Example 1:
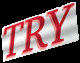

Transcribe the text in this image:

TRY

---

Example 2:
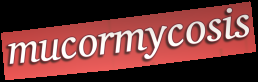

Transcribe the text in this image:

mucormycosis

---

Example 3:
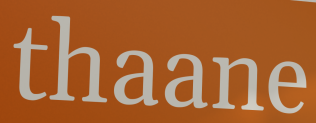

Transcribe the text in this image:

thaane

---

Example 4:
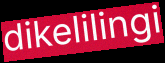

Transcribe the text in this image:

dikelilingi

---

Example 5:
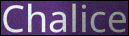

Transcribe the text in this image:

Chalice